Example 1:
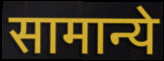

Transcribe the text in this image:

सामान्ये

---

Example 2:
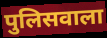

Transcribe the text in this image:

पुलिसवाला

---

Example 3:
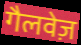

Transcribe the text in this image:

गैलवेज़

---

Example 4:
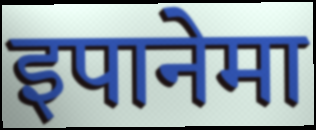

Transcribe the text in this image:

इपानेमा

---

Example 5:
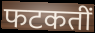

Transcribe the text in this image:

फटकतीं